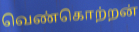
வெண்கொற்றன்